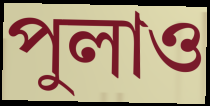
পুলাও